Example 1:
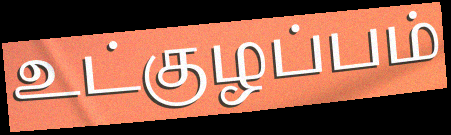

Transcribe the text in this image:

உட்குழப்பம்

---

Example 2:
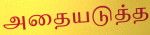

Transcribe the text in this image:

அதையடுத்த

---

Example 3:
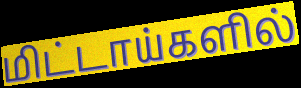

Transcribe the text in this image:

மிட்டாய்களில்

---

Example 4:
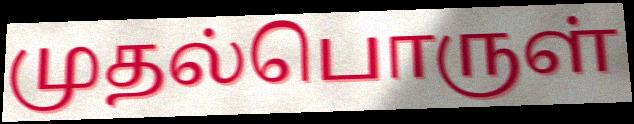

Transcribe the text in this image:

முதல்பொருள்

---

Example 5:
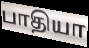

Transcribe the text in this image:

பாதியா